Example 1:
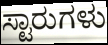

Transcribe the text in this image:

ಸ್ಟಾರುಗಳು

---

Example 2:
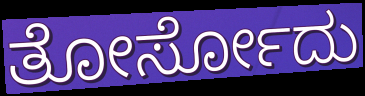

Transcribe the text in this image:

ತೋರ್ಸೋದು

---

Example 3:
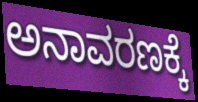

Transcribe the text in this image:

ಅನಾವರಣಕ್ಕೆ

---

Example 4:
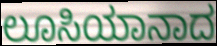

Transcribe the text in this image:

ಲೂಸಿಯಾನಾದ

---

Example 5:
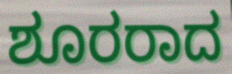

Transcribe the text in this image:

ಶೂರರಾದ